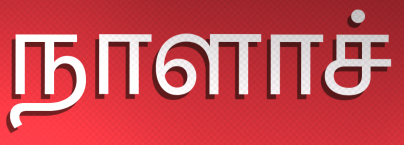
நாளாச்